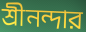
শ্রীনন্দার